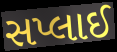
સપ્લાઈ